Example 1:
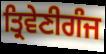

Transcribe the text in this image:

ਤ੍ਰਿਵੇਣੀਗੰਜ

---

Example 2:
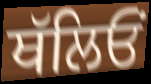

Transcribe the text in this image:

ਥੱਲਿਓਂ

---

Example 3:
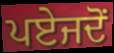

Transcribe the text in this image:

ਪਏਜਦੋਂ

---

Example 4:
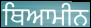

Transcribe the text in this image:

ਥਿਆਮੀਨ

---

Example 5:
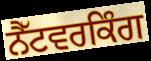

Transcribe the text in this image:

ਨੈੱਟਵਰਕਿੰਗ